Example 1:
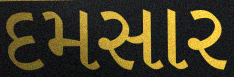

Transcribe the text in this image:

દમસાર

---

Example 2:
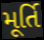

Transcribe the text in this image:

મૂર્તિ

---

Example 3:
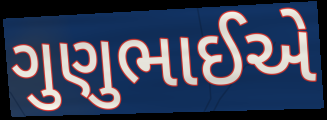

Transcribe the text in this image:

ગુણુભાઈએ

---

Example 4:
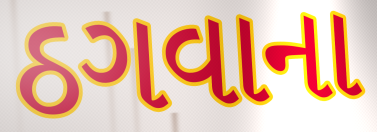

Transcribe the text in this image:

ઠગવાના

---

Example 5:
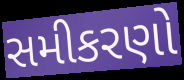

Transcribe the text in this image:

સમીકરણો